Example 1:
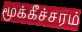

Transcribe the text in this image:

மூக்கீச்சரம்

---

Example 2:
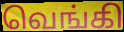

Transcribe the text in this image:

வெங்கி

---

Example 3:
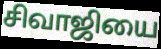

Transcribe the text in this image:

சிவாஜியை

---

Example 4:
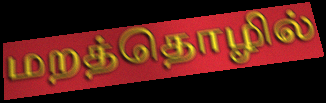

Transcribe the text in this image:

மறத்தொழில்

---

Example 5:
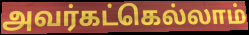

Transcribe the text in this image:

அவர்கட்கெல்லாம்